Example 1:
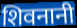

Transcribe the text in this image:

शिवनानी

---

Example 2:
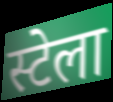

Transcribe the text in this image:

स्टेला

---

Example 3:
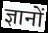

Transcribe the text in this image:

ज्ञानों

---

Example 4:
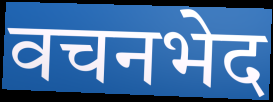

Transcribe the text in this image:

वचनभेद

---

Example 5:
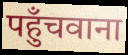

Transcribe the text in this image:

पहुँचवाना